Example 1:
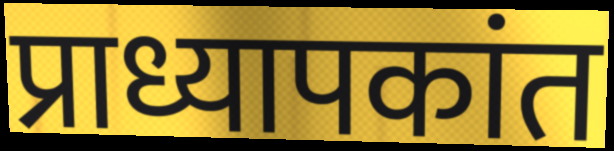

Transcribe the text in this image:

प्राध्यापकांत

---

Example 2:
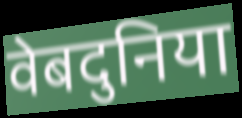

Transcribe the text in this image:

वेबदुनिया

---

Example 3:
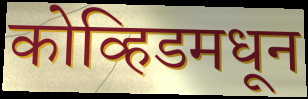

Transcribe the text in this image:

कोव्हिडमधून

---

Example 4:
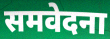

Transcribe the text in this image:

समवेदना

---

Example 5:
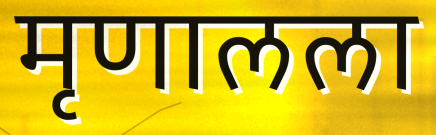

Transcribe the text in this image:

मृणालला